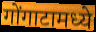
गोंगाटामध्ये